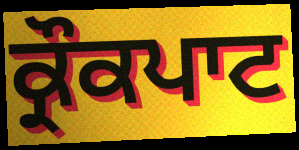
ਕ੍ਰੌਕਪਾਟ